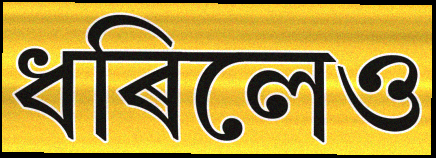
ধৰিলেও